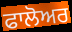
ਫਾਲੋਅਰ